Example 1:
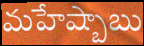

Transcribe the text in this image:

మహేష్బాబు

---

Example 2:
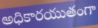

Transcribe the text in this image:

అధికారయుతంగా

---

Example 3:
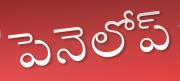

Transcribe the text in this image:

పెనెలోప్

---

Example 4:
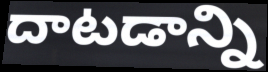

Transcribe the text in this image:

దాటడాన్ని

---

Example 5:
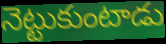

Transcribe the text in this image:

నెట్టుకుంటాడు